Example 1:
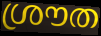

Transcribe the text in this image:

ശ്രൗത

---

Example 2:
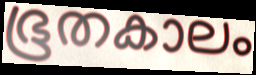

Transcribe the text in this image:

ഭൂതകാലം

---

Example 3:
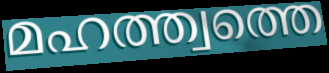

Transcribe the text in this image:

മഹത്ത്വത്തെ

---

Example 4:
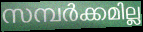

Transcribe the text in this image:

സമ്പർക്കമില്ല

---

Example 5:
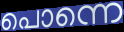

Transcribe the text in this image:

പൊന്നെ